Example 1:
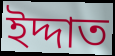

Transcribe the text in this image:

ইদ্দাত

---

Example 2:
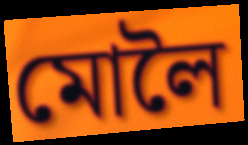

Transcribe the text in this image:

মোলৈ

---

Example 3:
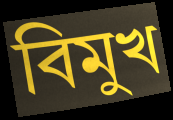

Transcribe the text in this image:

বিমুখ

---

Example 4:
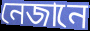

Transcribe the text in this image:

নেজানে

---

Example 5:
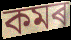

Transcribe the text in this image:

কমৰ